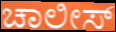
ಚಾಲೀಸ್